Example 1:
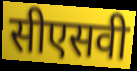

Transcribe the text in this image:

सीएसवी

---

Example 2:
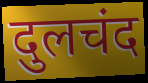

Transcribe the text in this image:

दुलचंद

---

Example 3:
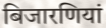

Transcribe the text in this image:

बिजारणियां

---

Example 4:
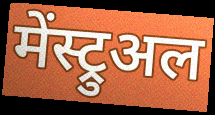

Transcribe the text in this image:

मेंस्ट्रुअल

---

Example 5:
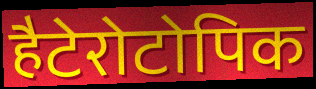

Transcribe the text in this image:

हैटेरोटोपिक